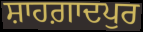
ਸ਼ਾਹਗ਼ਾਦਪੁਰ